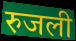
रुजली